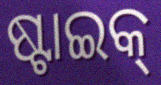
ଷ୍ଟାଇକ୍